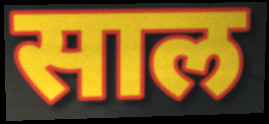
साल